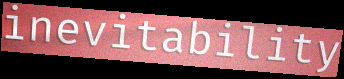
inevitability